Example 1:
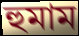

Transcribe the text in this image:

হুমাম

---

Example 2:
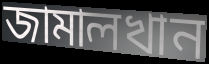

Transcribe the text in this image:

জামালখান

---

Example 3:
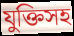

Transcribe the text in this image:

যুক্তিসহ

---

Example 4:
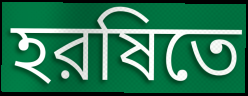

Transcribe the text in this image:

হরষিতে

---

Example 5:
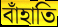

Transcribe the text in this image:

বাঁহাতি